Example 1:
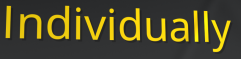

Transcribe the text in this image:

Individually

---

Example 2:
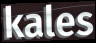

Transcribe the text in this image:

kales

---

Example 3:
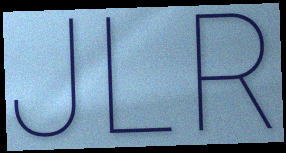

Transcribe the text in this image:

JLR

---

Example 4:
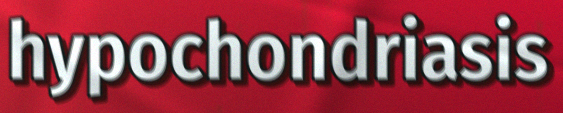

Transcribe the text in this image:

hypochondriasis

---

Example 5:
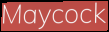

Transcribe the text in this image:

Maycock